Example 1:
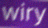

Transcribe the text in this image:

wiry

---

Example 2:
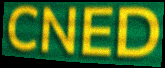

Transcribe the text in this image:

CNED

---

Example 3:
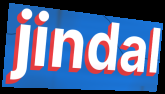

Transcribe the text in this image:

jindal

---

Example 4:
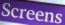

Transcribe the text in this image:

Screens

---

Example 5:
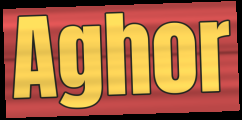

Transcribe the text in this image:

Aghor